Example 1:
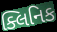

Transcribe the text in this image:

ક્લિનિક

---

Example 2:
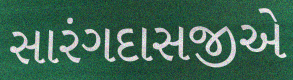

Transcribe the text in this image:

સારંગદાસજીએ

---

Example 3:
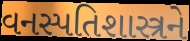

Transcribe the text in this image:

વનસ્પતિશાસ્ત્રને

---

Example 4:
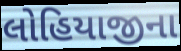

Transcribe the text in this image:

લોહિયાજીના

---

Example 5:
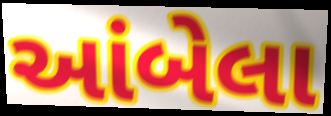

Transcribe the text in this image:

આંબેલા